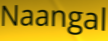
Naangal